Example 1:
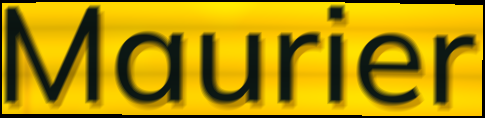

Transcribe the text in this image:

Maurier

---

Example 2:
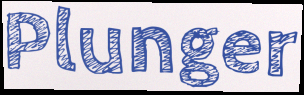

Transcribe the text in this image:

Plunger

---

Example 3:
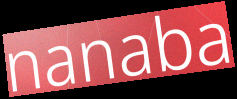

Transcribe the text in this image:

nanaba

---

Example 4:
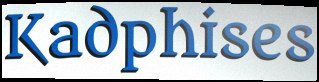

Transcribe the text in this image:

Kadphises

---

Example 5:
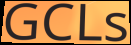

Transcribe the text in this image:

GCLs